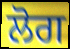
ਲੋਗ